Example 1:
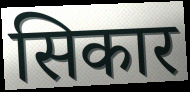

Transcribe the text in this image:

सिकार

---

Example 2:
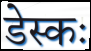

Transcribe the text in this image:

डेस्कः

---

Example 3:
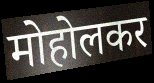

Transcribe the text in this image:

मोहोलकर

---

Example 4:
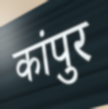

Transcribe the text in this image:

कांपुर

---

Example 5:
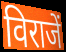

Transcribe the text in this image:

विराजें